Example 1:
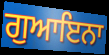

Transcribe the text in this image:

ਗੁਆਇਨਾ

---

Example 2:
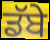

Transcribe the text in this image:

ਡੱਬੇ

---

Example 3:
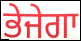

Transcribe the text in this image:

ਭੇਜੇਗਾ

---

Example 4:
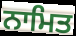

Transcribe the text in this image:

ਨਾਮਿਤ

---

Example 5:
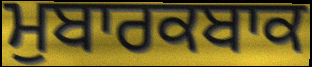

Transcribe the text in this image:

ਮੁਬਾਰਕਬਾਕ